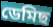
ডেমিছ